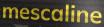
mescaline